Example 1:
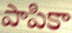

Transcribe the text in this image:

పాపికా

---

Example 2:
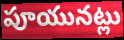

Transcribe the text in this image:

పూయునట్లు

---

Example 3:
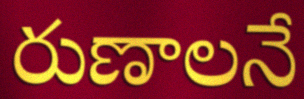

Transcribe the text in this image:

రుణాలనే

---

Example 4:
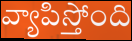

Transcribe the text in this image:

వ్యాపిస్తోంది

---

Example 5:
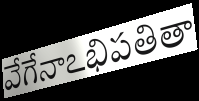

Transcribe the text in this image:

వేగేనాఽభిపతితా